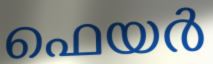
ഫെയർ